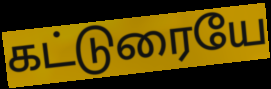
கட்டுரையே